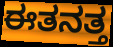
ಈತನತ್ತ